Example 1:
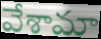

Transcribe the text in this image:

వేశామా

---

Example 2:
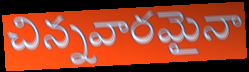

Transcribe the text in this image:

చిన్నవారమైనా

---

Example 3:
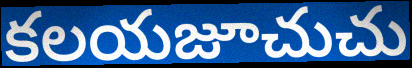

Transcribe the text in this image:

కలయజూచుచు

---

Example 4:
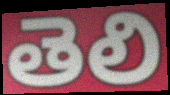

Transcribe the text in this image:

తెలి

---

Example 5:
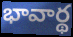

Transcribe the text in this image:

భావార్థ